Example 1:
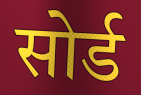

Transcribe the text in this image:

सोर्ड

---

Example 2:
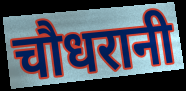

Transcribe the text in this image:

चौधरानी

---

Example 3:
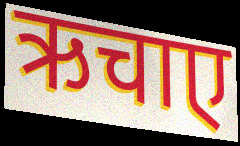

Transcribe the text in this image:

ऋचाए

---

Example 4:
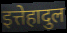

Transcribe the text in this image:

इत्तेहादुल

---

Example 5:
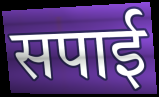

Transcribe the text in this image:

सपाई